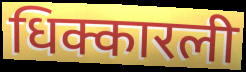
धिक्कारली